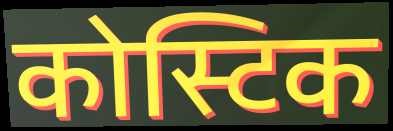
कोस्टिक